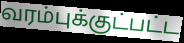
வரம்புக்குட்பட்ட